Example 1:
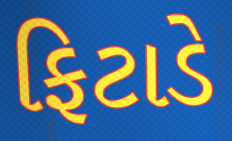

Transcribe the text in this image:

ફિટાડે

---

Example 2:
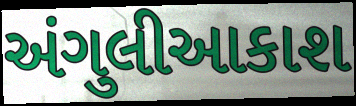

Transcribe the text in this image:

અંગુલીઆકાશ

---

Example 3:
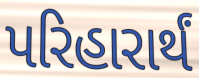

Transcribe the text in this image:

પરિહારાર્થં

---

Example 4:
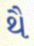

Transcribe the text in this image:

થૈ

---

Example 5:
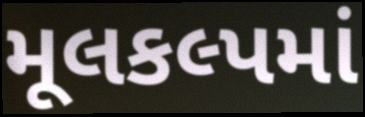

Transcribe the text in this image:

મૂલકલ્પમાં